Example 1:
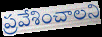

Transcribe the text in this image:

ప్రవేశించాలని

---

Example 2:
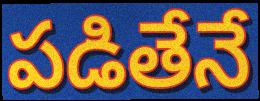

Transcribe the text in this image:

పడితేనే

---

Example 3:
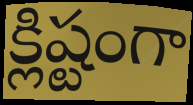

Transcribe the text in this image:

క్లిష్టంగా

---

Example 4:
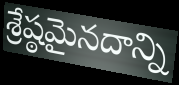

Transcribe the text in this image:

శ్రేష్ఠమైనదాన్ని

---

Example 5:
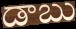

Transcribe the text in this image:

డాబు